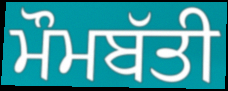
ਮੌਮਬੱਤੀ